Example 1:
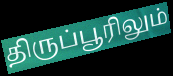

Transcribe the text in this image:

திருப்பூரிலும்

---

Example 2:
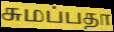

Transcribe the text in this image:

சுமப்பதா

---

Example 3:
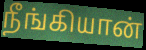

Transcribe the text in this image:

நீங்கியான்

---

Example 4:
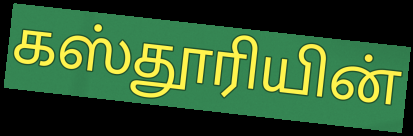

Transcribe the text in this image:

கஸ்தூரியின்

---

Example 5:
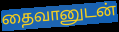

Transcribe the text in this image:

தைவானுடன்